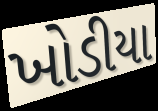
ખોડીયા